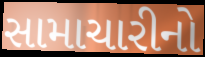
સામાચારીનો